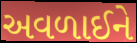
અવળાઈને